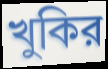
খুকির